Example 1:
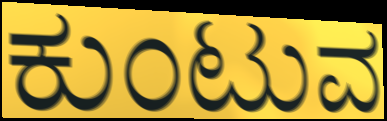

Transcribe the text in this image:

ಕುಂಟುವ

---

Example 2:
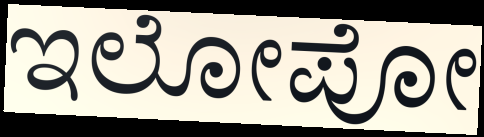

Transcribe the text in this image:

ಇಲೋಪೋ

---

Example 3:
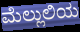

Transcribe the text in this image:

ಮೆಲ್ಲುಲಿಯ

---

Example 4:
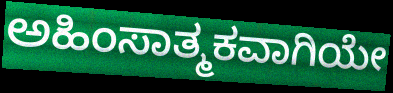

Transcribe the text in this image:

ಅಹಿಂಸಾತ್ಮಕವಾಗಿಯೇ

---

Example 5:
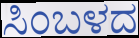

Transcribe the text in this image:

ಸಿಂಬಳದ